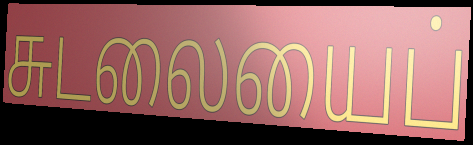
சுடலையைப்